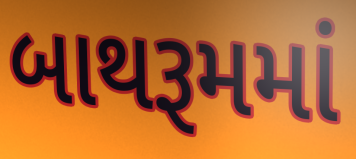
બાથરૂમમાં